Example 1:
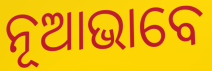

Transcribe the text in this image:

ନୂଆଭାବେ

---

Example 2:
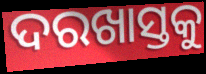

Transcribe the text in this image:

ଦରଖାସ୍ତକୁ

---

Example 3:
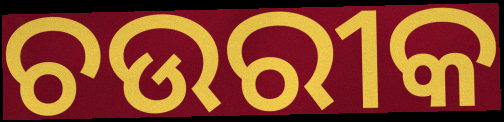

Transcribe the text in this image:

ଚଉରୀକ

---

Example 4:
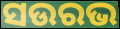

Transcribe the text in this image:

ସଉରଭ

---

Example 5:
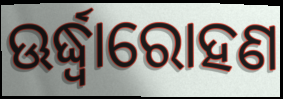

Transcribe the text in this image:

ଊର୍ଦ୍ଧ୍ୱାରୋହଣ